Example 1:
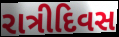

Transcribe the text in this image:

રાત્રીદિવસ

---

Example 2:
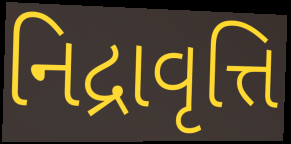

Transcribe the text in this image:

નિદ્રાવૃત્તિ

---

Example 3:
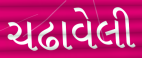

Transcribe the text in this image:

ચઢાવેલી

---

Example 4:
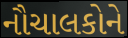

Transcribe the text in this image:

નૌચાલકોને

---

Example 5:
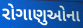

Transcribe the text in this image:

રોગાણુઓના